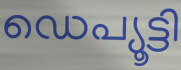
ഡെപ്യൂട്ടി